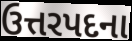
ઉત્તરપદના